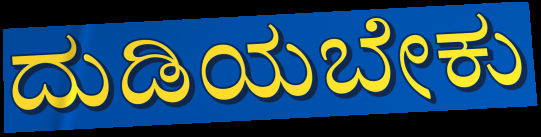
ದುಡಿಯಬೇಕು